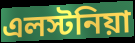
এলস্টনিয়া